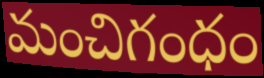
మంచిగంధం